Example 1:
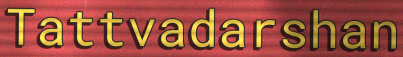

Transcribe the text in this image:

Tattvadarshan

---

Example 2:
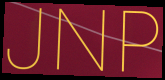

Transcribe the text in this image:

JNP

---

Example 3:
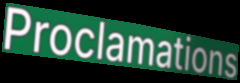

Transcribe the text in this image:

Proclamations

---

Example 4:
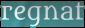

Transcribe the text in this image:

regnat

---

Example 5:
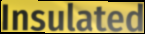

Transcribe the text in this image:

Insulated